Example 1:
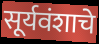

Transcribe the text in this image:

सूर्यवंशाचे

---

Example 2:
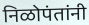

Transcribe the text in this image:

निळोपंतांनी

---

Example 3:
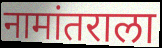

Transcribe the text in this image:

नामांतराला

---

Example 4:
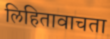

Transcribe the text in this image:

लिहितावाचता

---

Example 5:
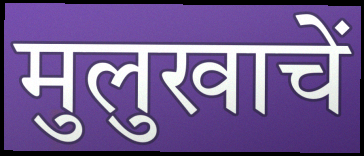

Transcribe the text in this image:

मुलुखाचें